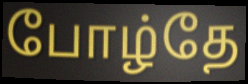
போழ்தே